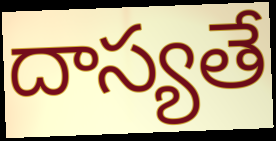
దాస్యతే